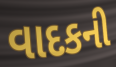
વાદકની